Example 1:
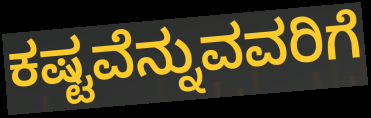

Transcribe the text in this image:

ಕಷ್ಟವೆನ್ನುವವರಿಗೆ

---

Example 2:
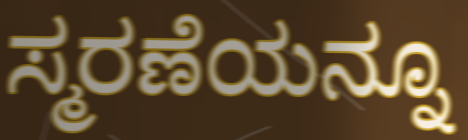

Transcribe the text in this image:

ಸ್ಮರಣೆಯನ್ನೂ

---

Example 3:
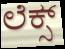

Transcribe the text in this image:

ಲೆಕ್ಸ್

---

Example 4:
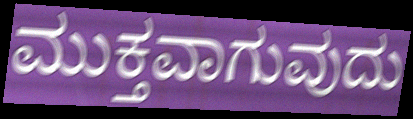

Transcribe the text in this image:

ಮುಕ್ತವಾಗುವುದು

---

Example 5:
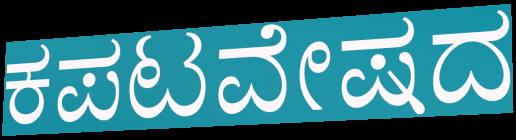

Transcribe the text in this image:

ಕಪಟವೇಷದ